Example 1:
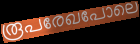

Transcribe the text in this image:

രൂപരേഖപോലെ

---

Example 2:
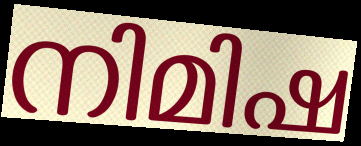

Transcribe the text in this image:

നിമിഷ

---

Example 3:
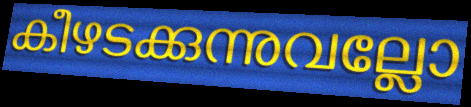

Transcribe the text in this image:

കീഴടക്കുന്നുവല്ലോ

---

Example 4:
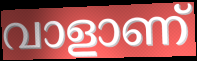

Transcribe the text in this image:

വാളാണ്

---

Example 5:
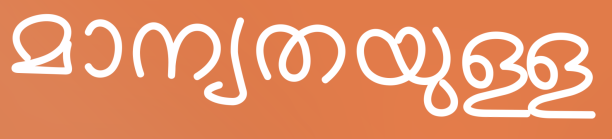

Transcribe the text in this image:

മാന്യതയുള്ള